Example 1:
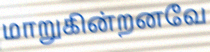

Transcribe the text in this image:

மாறுகின்றனவே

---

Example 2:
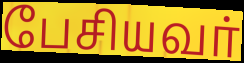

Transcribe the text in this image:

பேசியவர்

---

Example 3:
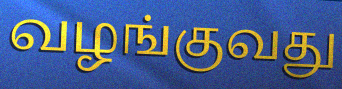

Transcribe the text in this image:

வழங்குவது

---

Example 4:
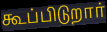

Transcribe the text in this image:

கூப்பிடுறார்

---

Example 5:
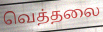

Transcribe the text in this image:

வெத்தலை